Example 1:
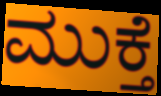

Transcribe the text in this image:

ಮುಕ್ತೆ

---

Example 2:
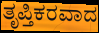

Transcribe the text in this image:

ತೃಪ್ತಿಕರವಾದ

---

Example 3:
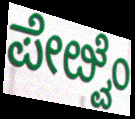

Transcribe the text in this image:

ಪೇೞ್ವೆಂ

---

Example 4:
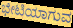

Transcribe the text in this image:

ಭೇಟಿಯಾಗುವ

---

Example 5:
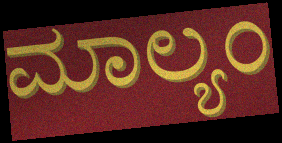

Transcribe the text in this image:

ಮಾಲ್ಯಂ